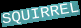
SQUIRREL